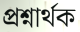
প্ৰশ্নাৰ্থক